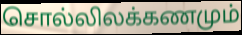
சொல்லிலக்கணமும்